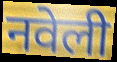
नवेली